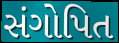
સંગોપિત